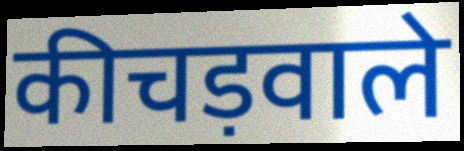
कीचड़वाले